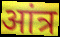
आंत्र